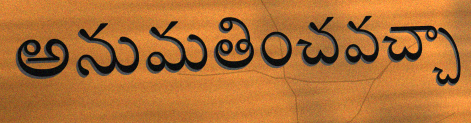
అనుమతించవచ్చా